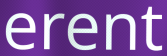
erent